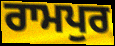
ਰਾਮਪੁਰ